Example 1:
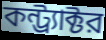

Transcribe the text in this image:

কন্ট্র্যাক্টর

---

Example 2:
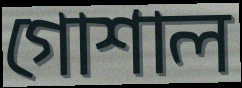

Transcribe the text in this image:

গোশাল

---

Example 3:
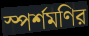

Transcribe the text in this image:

স্পর্শমণির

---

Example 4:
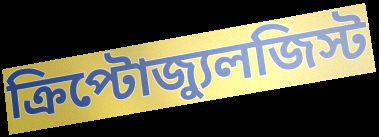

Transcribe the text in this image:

ক্রিপ্টোজ্যুলজিস্ট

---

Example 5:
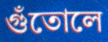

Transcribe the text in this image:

গুঁতোলে